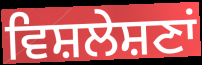
ਵਿਸ਼ਲੇਸ਼ਣਾਂ